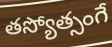
తస్యోత్సంగే